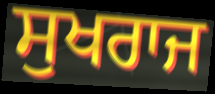
ਸੁਖਰਾਜ